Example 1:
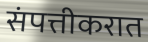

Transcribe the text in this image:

संपत्तीकरात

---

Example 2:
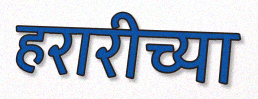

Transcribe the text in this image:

हरारीच्या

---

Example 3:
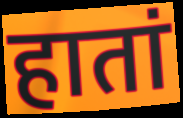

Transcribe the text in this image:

हातां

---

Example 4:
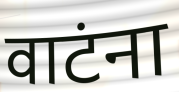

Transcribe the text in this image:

वाटंना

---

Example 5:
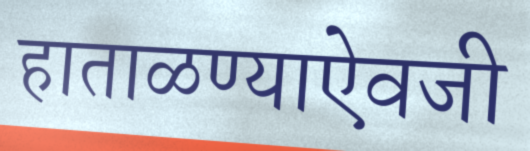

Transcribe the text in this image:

हाताळण्याऐवजी